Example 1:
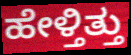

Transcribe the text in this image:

ಹೇಳ್ತಿತ್ತು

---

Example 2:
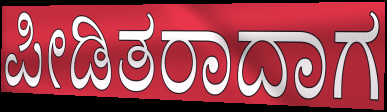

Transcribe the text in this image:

ಪೀಡಿತರಾದಾಗ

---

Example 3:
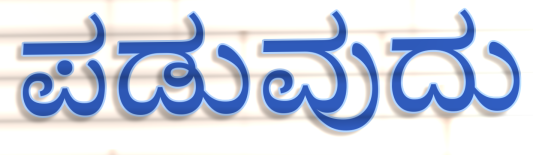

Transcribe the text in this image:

ಪಡುವುದು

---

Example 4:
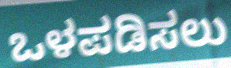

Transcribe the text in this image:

ಒಳಪಡಿಸಲು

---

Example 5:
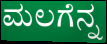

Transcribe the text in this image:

ಮಲಗೆನ್ನ